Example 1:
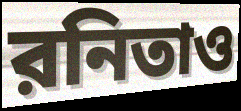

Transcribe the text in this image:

রনিতাও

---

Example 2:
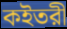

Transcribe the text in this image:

কইতরী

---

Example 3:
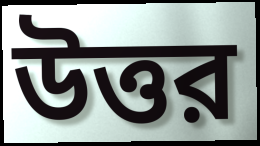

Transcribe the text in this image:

উত্তর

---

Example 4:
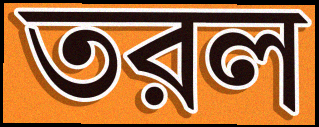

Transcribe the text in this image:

তরল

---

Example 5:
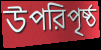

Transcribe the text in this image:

উপরিপৃষ্ঠ